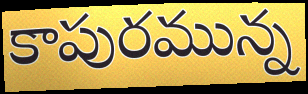
కాపురమున్న